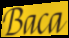
Baca